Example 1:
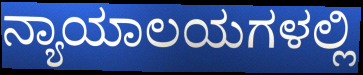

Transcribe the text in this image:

ನ್ಯಾಯಾಲಯಗಳಲ್ಲಿ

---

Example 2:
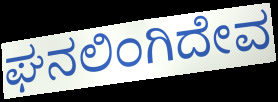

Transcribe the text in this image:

ಘನಲಿಂಗಿದೇವ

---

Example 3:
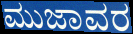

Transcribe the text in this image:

ಮುಜಾವರ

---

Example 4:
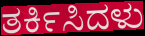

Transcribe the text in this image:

ತರ್ಕಿಸಿದಳು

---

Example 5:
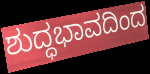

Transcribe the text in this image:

ಶುದ್ಧಭಾವದಿಂದ